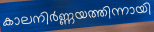
കാലനിർണ്ണയത്തിന്നായി